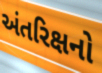
અંતરિક્ષનો